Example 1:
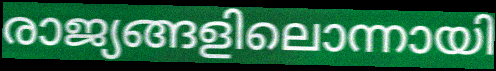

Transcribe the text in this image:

രാജ്യങ്ങളിലൊന്നായി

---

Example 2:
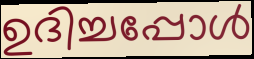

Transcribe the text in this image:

ഉദിച്ചപ്പോൾ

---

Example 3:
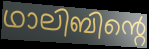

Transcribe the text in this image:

ഥാലിബിന്റെ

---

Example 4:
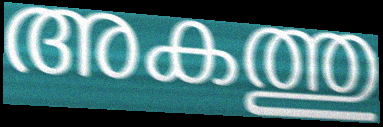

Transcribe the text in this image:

അകത്തു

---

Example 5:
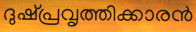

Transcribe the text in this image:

ദുഷ്പ്രവൃത്തിക്കാരൻ